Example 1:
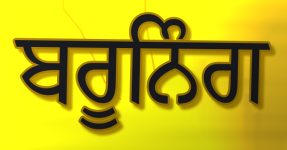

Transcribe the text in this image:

ਬਰੂਨਿੰਗ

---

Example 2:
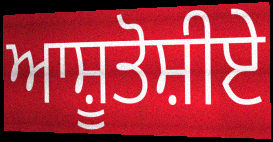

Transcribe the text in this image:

ਆਸ਼ੂਤੋਸ਼ੀਏ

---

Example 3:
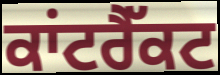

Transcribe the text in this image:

ਕਾਂਟਰੈੱਕਟ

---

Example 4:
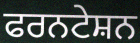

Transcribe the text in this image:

ਫਰਨਟੇਸ਼ਨ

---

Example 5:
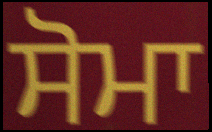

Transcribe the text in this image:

ਸੋਮਾ